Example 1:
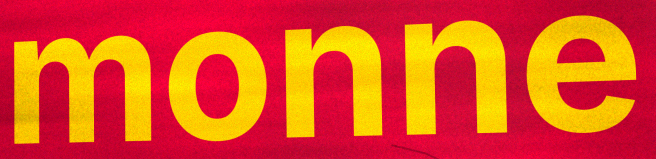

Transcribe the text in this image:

monne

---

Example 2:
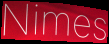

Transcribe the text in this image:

Nimes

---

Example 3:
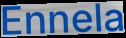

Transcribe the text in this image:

Ennela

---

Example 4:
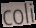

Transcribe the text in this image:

coli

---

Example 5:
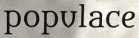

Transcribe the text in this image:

populace